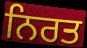
ਨਿਰਤ